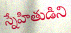
స్నేహితుడిని